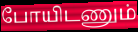
போயிடணும்